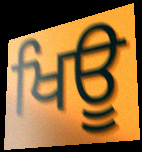
ਖਿਊ